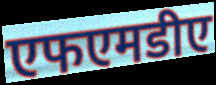
एफएमडीए